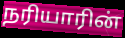
நரியாரின்